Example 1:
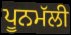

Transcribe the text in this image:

ਪੂਨਮੱਲੀ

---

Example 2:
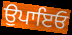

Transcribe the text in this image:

ਉਪਾਇਓ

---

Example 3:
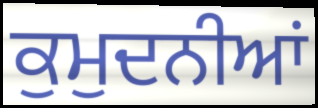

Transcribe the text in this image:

ਕੁਮੁਦਨੀਆਂ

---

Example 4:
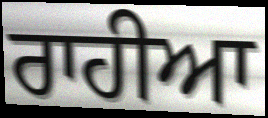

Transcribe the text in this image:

ਰਾਹੀਆ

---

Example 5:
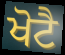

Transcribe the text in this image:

ਖੋਟੈ